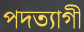
পদত্যাগী